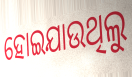
ହୋଇଯାଉଥିଲୁ